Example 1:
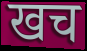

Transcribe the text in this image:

खच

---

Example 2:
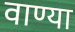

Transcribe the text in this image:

वाण्या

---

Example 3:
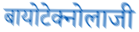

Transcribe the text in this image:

बायोटेक्नोलाजी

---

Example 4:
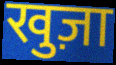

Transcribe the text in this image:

खुज़ा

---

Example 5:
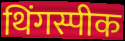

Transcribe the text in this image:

थिंगस्पीक